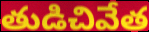
తుడిచివేత